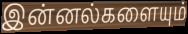
இன்னல்களையும்